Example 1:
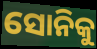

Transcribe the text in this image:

ସୋନିକୁ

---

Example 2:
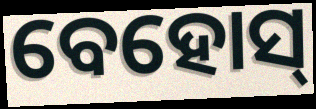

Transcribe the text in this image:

ବେହୋସ୍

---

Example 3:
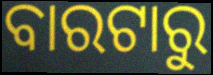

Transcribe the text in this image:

ବାରଟାରୁ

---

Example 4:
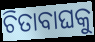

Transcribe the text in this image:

ଚିତାବାଘକୁ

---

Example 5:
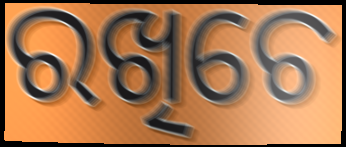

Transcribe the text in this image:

ରଖିଚେ